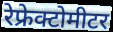
रेफ्रेक्टोमीटर